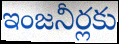
ఇంజనీర్లకు